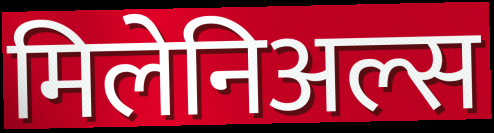
मिलेनिअल्स